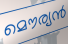
മൌര്യൻ